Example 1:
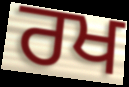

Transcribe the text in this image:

ਰਖ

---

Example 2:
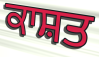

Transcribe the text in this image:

ਕਾਸ਼ਤ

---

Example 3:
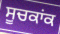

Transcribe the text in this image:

ਸੂਚਕਾਂਕ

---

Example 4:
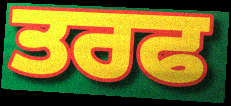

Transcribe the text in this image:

ਤਰਫ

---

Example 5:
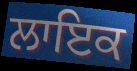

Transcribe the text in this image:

ਲਾਇਕ